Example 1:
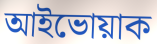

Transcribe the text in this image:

আইভোয়াক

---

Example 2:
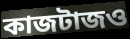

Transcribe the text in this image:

কাজটাজও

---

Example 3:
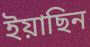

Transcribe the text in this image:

ইয়াছিন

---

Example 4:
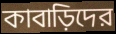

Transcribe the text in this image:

কাবাড়িদের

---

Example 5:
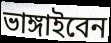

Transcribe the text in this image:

ভাঙ্গাইবেন